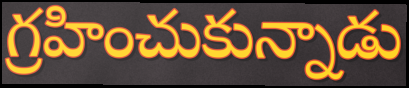
గ్రహించుకున్నాడు